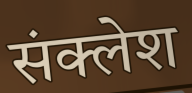
संक्लेश